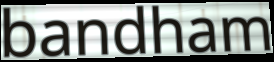
bandham